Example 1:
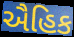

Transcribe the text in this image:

ઐહિક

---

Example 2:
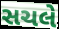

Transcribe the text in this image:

સચલે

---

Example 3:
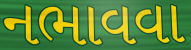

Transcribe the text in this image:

નભાવવા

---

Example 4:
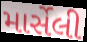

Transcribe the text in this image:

માર્સેલી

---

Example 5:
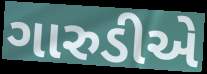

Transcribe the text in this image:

ગારુડીએ